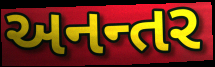
અનન્તર